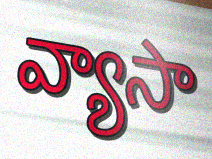
వ్యాసా